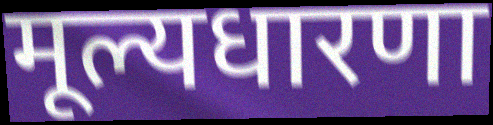
मूल्यधारणा